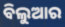
ବିଲୁଆର